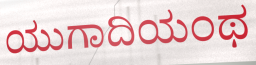
ಯುಗಾದಿಯಂಥ